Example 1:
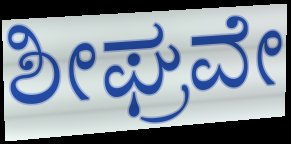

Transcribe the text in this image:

ಶೀಘ್ರವೇ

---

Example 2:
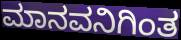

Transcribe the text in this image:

ಮಾನವನಿಗಿಂತ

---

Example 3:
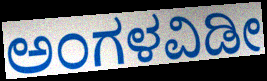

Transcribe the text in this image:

ಅಂಗಳವಿಡೀ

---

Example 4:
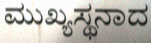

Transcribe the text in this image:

ಮುಖ್ಯಸ್ಥನಾದ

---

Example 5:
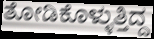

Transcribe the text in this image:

ತೋಡಿಕೊಳ್ಳುತ್ತಿದ್ದ